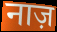
नाज़